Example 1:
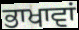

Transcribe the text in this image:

ਭਾਖਾਵਾਂ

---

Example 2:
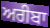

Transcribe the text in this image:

ਅਰੀਬਾ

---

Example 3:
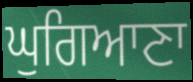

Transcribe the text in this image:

ਘੁਗਿਆਣਾ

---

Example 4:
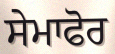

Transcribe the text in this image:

ਸੇਮਾਫੋਰ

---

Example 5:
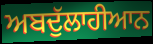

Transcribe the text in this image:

ਅਬਦੁੱਲਾਹੀਆਨ